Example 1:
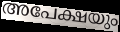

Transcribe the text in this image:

അപേക്ഷയും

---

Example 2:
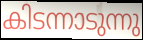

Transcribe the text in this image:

കിടന്നാടുന്നു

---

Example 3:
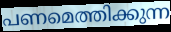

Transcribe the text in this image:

പണമെത്തിക്കുന്ന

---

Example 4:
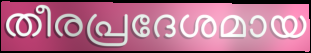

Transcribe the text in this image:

തീരപ്രദേശമായ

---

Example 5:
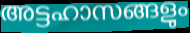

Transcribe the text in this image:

അട്ടഹാസങ്ങളും